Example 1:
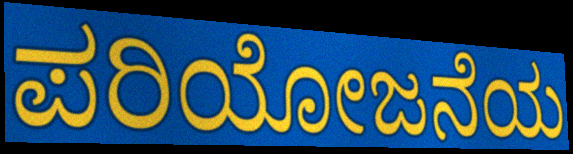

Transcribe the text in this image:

ಪರಿಯೋಜನೆಯ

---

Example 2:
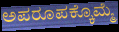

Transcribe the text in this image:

ಅಪರೂಪಕ್ಕೊಮ್ಮೆ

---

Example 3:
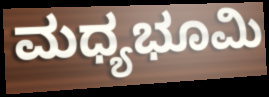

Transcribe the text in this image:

ಮಧ್ಯಭೂಮಿ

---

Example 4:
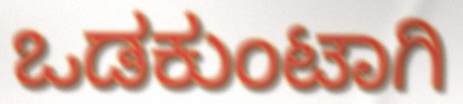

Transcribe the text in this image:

ಒಡಕುಂಟಾಗಿ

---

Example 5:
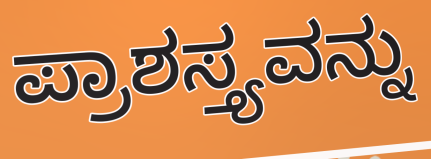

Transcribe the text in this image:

ಪ್ರಾಶಸ್ತ್ಯವನ್ನು